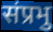
संप्रभु